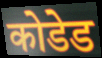
कोडेड